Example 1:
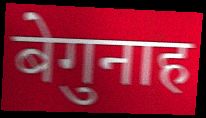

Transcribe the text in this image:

बेगुनाह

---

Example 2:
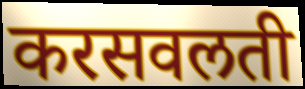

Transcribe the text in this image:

करसवलती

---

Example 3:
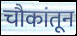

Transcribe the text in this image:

चौकांतून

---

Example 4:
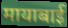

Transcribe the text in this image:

मायाबाई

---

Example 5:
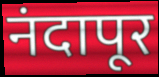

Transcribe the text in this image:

नंदापूर